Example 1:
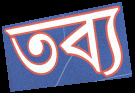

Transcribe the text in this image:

তব্য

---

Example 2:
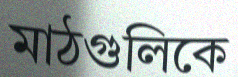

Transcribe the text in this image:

মাঠগুলিকে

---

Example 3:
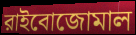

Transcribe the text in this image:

রাইবোজোমাল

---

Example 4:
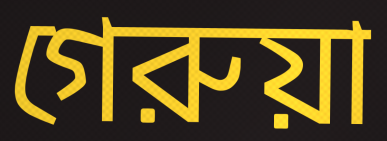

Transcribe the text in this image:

গেরুয়া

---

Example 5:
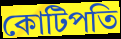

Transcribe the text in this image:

কোটিপতি